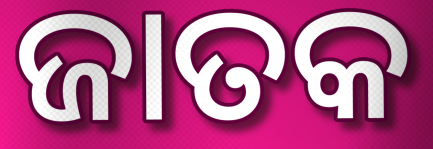
ଜାତକ